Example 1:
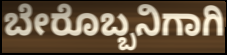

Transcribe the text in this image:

ಬೇರೊಬ್ಬನಿಗಾಗಿ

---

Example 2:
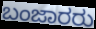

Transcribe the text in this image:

ಬಂಜಾರರು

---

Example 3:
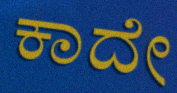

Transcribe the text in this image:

ಕಾದೇ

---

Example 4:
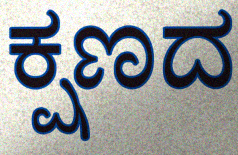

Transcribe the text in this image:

ಕ್ಷಣದ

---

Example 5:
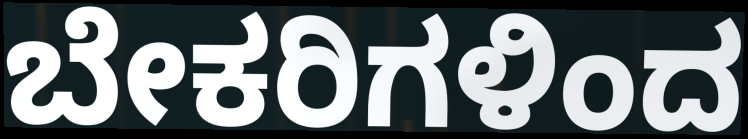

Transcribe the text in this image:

ಬೇಕರಿಗಳಿಂದ